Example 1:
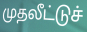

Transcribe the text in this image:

முதலீட்டுச்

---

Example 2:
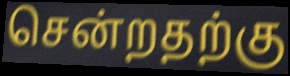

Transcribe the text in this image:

சென்றதற்கு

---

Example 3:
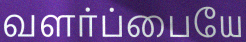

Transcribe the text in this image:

வளர்ப்பையே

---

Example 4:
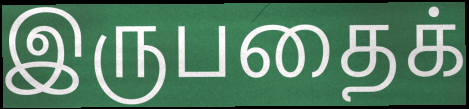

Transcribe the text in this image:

இருபதைக்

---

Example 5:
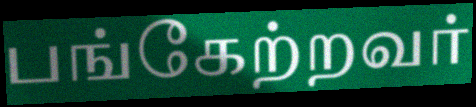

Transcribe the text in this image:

பங்கேற்றவர்